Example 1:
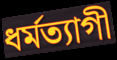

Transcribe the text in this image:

ধর্মত্যাগী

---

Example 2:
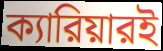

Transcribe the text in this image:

ক্যারিয়ারই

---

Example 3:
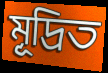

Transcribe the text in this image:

মূদ্রিত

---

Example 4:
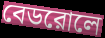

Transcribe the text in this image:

বেডরোলে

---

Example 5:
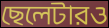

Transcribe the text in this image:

ছেলেটারও